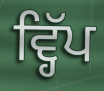
ਵ੍ਹਿੱਪ